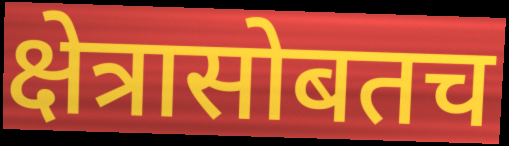
क्षेत्रासोबतच